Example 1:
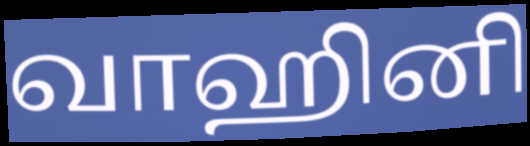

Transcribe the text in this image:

வாஹினி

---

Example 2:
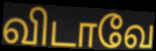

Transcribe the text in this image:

விடாவே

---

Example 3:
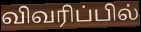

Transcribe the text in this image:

விவரிப்பில்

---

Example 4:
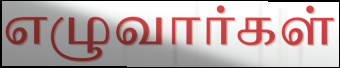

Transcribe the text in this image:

எழுவார்கள்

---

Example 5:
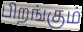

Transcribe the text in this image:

பிறங்கும்